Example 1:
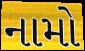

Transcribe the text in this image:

નામો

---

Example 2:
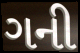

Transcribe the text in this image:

ગની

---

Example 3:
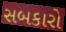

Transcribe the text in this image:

સબકારો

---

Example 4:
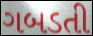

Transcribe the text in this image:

ગબડતી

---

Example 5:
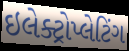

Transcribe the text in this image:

ઇલેક્ટ્રોપ્લેટિંગ